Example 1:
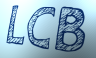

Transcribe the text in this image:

LCB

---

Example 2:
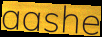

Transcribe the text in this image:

aashe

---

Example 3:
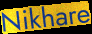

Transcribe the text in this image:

Nikhare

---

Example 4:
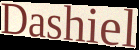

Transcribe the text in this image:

Dashiel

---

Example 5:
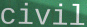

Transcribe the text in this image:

civil